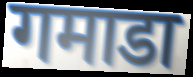
गमाडा